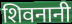
शिवनानी